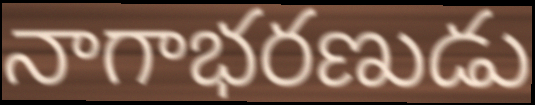
నాగాభరణుడు